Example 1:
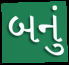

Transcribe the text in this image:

બનું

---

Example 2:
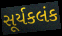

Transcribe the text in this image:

સૂર્યકલંક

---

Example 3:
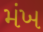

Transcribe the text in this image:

મંખ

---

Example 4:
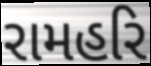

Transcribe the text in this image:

રામહરિ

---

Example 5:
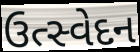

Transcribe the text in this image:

ઉત્સ્વેદન